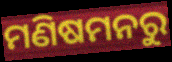
ମଣିଷମନରୁ